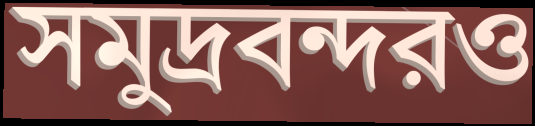
সমুদ্রবন্দরও